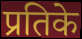
प्रतिके